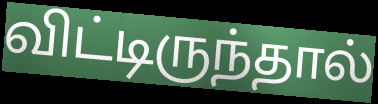
விட்டிருந்தால்